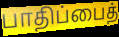
பாதிப்பைத்